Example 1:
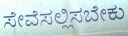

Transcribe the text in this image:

ಸೇವೆಸಲ್ಲಿಸಬೇಕು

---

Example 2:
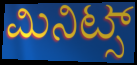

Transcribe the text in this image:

ಮಿನಿಟ್ಸ್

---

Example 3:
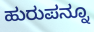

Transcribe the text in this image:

ಹುರುಪನ್ನೂ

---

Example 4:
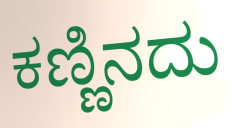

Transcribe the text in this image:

ಕಣ್ಣಿನದು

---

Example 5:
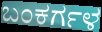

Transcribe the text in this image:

ಬಂಕರ್ಗಳ